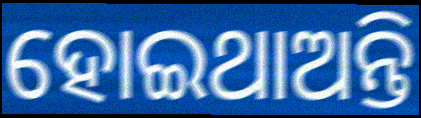
ହୋଇଥାଅନ୍ତି